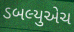
ડબલ્યુએચ